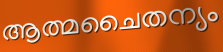
ആത്മചൈതന്യം